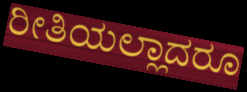
ರೀತಿಯಲ್ಲಾದರೂ